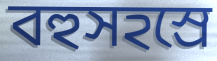
বহুসহস্রে